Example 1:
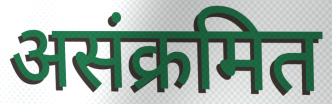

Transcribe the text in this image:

असंक्रमित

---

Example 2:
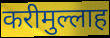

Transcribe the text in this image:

करीमुल्लाह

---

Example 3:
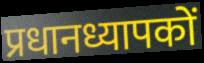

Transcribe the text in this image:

प्रधानध्यापकों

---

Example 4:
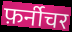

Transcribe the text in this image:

फ़र्नीचर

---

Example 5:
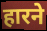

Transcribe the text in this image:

हारने